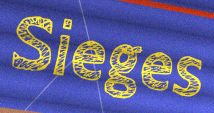
Sieges